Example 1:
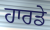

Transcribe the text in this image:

ਹਾਰਡੇ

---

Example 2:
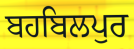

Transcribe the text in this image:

ਬਹਬਿਲਪੁਰ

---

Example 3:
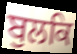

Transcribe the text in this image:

ਬੁਲਕਿ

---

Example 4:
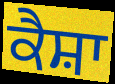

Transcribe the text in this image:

ਕੈਸ਼ਾ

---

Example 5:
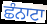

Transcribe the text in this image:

ਛੰਨਾਟਾ